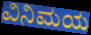
ವಿನಿಮಯ